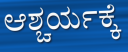
ಆಶ್ಚರ್ಯಕ್ಕೆ